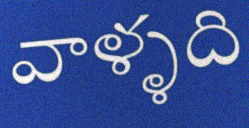
వాళ్ళది